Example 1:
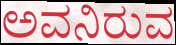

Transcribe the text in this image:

ಅವನಿರುವ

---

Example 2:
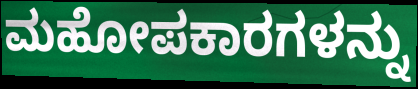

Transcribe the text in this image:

ಮಹೋಪಕಾರಗಳನ್ನು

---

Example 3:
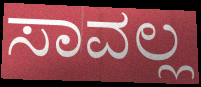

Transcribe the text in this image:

ಸಾವಲ್ಲ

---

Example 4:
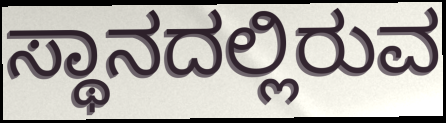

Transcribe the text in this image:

ಸ್ಥಾನದಲ್ಲಿರುವ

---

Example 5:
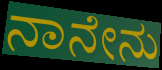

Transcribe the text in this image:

ನಾನೇನು